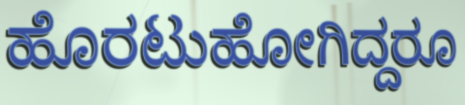
ಹೊರಟುಹೋಗಿದ್ದರೂ